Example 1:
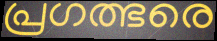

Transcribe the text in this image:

പ്രഗത്ഭരെ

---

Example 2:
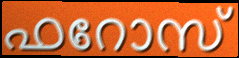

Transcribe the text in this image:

ഫറോസ്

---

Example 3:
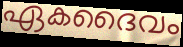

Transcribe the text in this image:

ഏകദൈവം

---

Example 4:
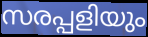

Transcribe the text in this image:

സരപ്പളിയും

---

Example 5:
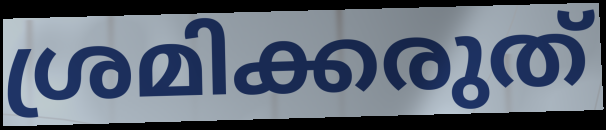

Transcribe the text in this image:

ശ്രമിക്കരുത്